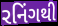
રનિંગથી